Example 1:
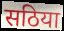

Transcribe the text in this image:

सठिया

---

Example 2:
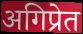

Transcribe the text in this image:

अगिप्रेत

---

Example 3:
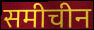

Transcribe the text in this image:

समीचीन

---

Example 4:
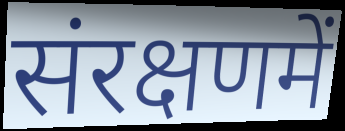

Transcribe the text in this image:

संरक्षणमें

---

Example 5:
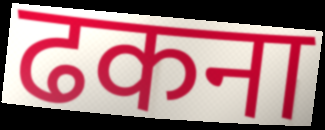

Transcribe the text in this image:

ढकना